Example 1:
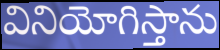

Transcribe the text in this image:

వినియోగిస్తాను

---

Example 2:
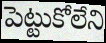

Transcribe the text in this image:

పెట్టుకోలేని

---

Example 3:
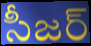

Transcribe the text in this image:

సీజర్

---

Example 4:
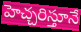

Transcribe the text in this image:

హెచ్చరిస్తూనే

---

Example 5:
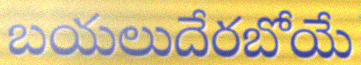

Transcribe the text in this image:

బయలుదేరబోయే